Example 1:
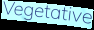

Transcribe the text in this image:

Vegetative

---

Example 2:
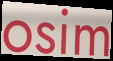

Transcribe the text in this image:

osim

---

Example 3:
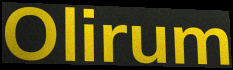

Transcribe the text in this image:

Olirum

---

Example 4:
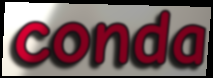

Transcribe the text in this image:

conda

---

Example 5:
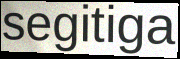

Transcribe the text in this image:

segitiga